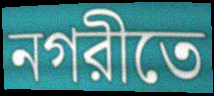
নগরীতে